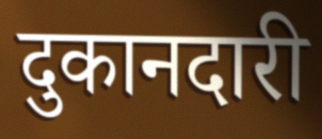
दुकानदारी